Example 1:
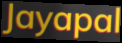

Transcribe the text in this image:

Jayapal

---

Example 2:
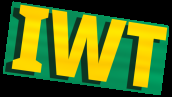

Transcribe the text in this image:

IWT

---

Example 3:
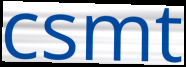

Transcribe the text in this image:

csmt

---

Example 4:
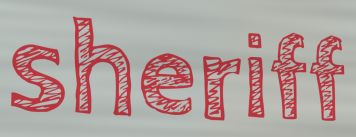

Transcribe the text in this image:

sheriff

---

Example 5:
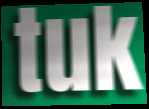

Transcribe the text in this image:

tuk